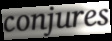
conjures